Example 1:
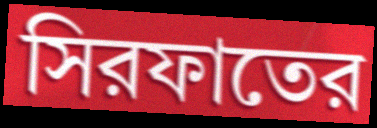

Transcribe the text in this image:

সিরফাতের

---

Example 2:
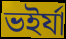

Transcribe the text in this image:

ভইর্যা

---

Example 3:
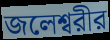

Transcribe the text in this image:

জলেশ্বরীর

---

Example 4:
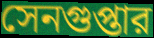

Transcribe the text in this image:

সেনগুপ্তার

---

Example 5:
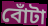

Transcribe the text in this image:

বোঁটা